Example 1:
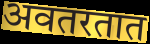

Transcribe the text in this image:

अवतरतात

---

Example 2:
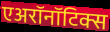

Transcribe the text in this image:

एअरॉनॉटिक्स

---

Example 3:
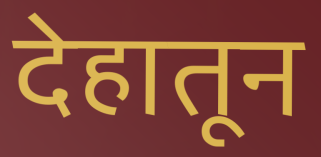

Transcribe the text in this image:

देहातून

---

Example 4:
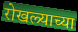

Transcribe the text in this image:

रोखल्याच्या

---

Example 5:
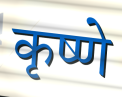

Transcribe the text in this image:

कृष्णे